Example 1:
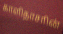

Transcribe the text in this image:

காளிதாசரின்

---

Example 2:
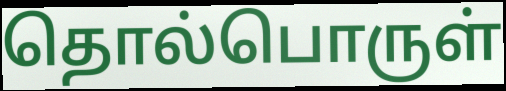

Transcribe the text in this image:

தொல்பொருள்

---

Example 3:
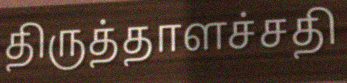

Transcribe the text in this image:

திருத்தாளச்சதி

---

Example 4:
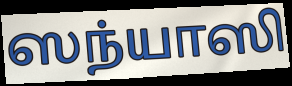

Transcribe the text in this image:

ஸந்யாஸி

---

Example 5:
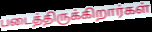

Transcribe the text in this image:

படைத்திருக்கிறார்கள்